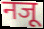
नजू